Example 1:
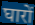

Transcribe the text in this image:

घारों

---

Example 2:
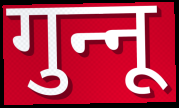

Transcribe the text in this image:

गुन्नू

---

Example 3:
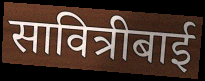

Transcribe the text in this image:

सावित्रीबाई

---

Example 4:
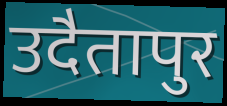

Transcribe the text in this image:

उदैतापुर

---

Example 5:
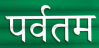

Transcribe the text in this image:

पर्वतम